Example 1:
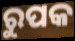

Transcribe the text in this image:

ରୁପକ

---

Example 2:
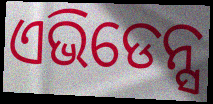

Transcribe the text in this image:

ଏଭିଡେନ୍ସ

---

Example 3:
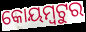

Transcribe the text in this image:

କୋୟମ୍ବଟୁର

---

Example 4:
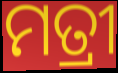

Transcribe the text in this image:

ମତ୍ରୀ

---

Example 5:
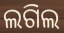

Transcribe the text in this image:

ଲଗିଲ